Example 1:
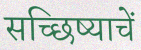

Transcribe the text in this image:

सच्छिष्याचें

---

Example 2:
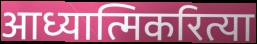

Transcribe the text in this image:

आध्यात्मिकरित्या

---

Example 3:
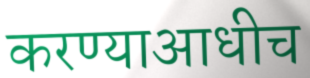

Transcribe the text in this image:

करण्याआधीच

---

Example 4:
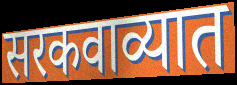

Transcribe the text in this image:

सरकवाव्यात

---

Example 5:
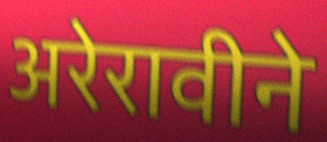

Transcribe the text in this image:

अरेरावीने